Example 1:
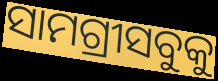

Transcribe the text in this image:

ସାମଗ୍ରୀସବୁକୁ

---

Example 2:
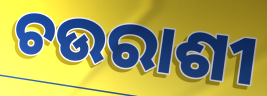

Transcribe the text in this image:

ଚଉରାଶୀ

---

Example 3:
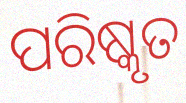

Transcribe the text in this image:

ପରିଷ୍କୃତ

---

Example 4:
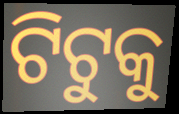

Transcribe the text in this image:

ଟିଟୁକୁ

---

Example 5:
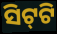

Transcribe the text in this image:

ସିଟ୍‌ଟି